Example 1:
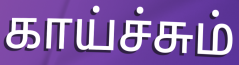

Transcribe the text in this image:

காய்ச்சும்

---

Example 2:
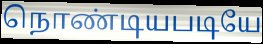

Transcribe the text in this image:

நொண்டியபடியே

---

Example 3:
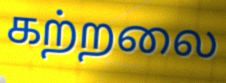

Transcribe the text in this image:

கற்றலை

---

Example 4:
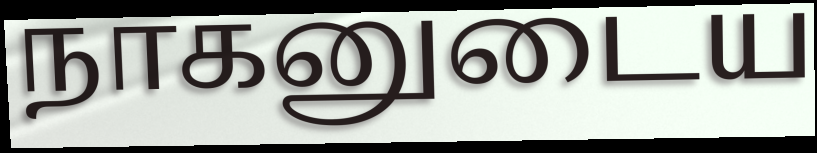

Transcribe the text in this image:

நாகனுடைய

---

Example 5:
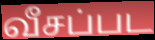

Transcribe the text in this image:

வீசப்பட